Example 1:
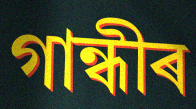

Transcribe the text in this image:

গান্ধীৰ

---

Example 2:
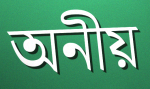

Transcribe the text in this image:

অনীয়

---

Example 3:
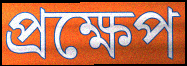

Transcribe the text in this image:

প্ৰক্ষেপ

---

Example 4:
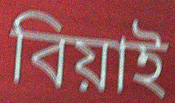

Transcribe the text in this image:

বিয়াই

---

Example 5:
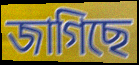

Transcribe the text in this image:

জাগিছে